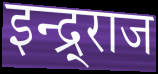
इन्द्र्राज